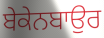
ਬੇਕੇਨਬਾਉਰ